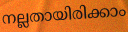
നല്ലതായിരിക്കാം